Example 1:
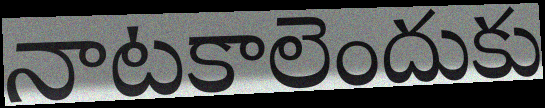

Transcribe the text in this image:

నాటకాలెందుకు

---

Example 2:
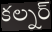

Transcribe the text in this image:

కల్నర్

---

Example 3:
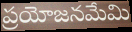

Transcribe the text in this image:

ప్రయోజనమేమి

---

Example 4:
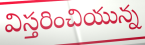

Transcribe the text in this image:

విస్తరించియున్న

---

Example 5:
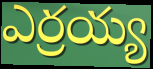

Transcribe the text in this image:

ఎర్రయ్య